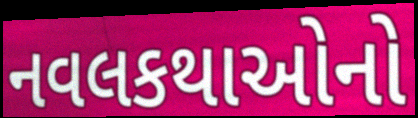
નવલકથાઓનો